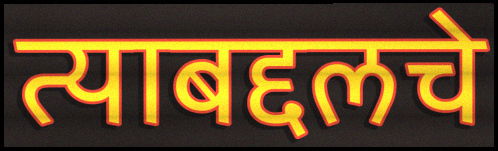
त्याबद्दलचे